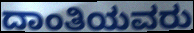
ದಾಂತಿಯವರು